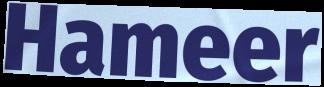
Hameer